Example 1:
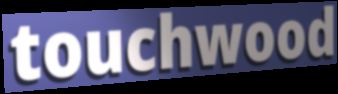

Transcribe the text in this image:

touchwood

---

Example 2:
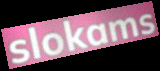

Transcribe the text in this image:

slokams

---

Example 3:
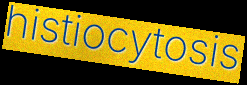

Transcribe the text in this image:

histiocytosis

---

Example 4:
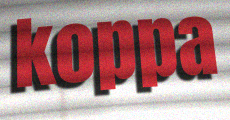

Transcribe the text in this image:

koppa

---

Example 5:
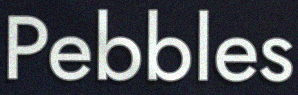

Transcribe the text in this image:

Pebbles